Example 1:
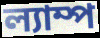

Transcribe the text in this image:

ল্যাম্প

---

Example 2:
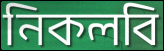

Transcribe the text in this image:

নিকলবি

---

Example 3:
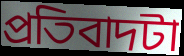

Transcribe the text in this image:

প্রতিবাদটা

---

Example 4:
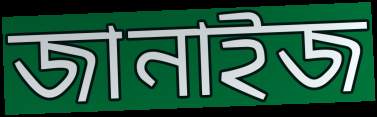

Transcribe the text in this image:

জানাইজ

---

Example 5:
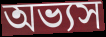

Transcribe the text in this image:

অভ্যস